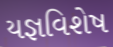
યજ્ઞવિશેષ